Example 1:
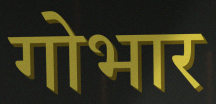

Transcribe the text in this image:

गोभार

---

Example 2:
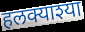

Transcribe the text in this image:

हलक्याश्या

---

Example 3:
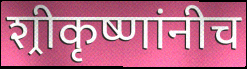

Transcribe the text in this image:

श्रीकृष्णांनीच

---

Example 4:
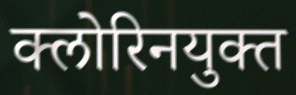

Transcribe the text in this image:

क्लोरिनयुक्त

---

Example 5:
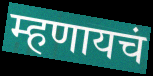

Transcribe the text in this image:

म्हणायचं